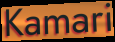
Kamari